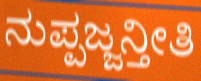
ನುಪ್ಪಜ್ಜನ್ತೀತಿ